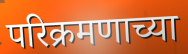
परिक्रमणाच्या